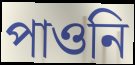
পাওনি